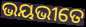
ଭୟଭୀତେ